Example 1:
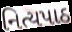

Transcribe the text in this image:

નિત્યપાઠ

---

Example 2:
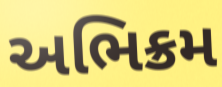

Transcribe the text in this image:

અભિક્રમ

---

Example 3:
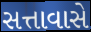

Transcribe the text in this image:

સત્તાવાસે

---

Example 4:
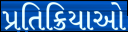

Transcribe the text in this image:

પ્રતિક્રિયાઓ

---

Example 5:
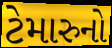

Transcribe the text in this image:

ટેમારુનો